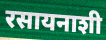
रसायनाशी